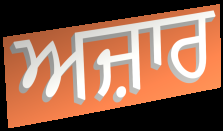
ਅਜ਼ਾਰ